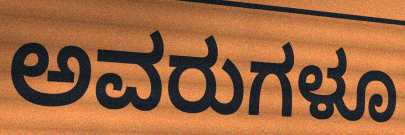
ಅವರುಗಳೂ